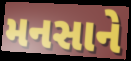
મનસાને